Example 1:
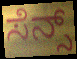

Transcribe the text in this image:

ಸೆನ್ಸ್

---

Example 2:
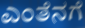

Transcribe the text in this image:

ಎಂತೆನಗೆ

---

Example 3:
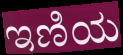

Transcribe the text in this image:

ಇಣಿಯ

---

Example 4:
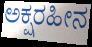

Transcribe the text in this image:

ಅಕ್ಷರಹೀನ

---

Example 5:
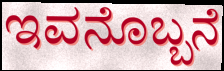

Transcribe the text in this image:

ಇವನೊಬ್ಬನೆ